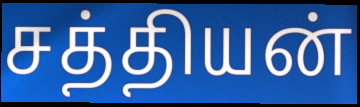
சத்தியன்